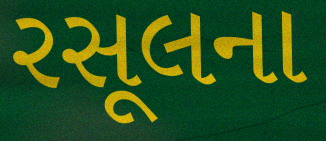
રસૂલના